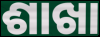
ଶାଖା